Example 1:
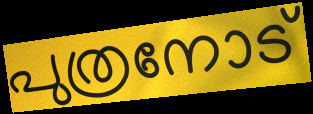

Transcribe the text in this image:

പുത്രനോട്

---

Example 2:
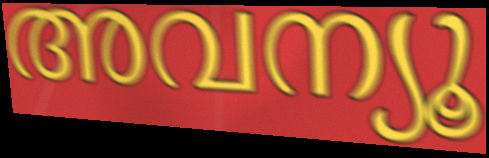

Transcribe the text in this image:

അവന്യൂ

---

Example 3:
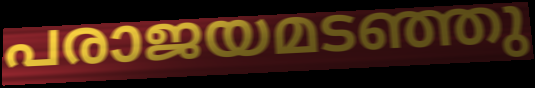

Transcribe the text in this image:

പരാജയമടഞ്ഞു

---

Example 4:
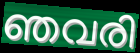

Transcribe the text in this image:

ഞവരി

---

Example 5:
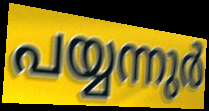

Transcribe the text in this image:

പയ്യന്നുർ